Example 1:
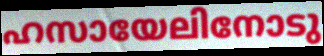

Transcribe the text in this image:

ഹസായേലിനോടു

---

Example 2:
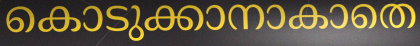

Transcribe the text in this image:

കൊടുക്കാനാകാതെ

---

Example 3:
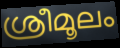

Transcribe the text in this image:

ശ്രീമൂലം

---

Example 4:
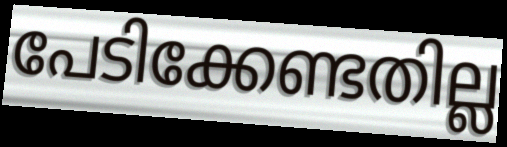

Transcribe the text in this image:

പേടിക്കേണ്ടതില്ല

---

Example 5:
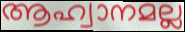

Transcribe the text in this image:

ആഹ്വാനമല്ല